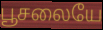
பூசலையே